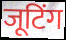
जूटिंग